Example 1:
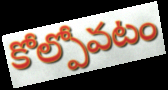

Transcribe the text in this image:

కోల్పోవటం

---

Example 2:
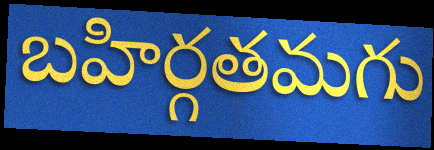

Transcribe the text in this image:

బహిర్గతమగు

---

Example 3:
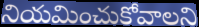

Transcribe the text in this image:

నియమించుకోవాలని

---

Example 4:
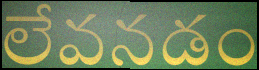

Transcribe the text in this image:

లేవనడం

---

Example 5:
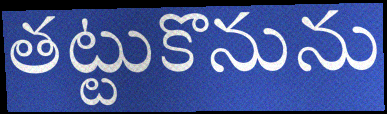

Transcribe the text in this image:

తట్టుకొనును